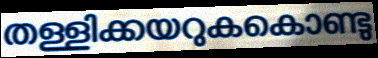
തള്ളിക്കയറുകകൊണ്ടു